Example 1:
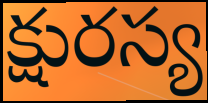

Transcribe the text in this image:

క్షురస్య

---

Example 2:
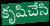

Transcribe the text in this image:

కృషిచేసి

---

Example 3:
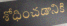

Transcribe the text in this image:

శోధించడానికి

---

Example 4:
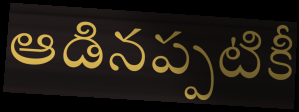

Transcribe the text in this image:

ఆడినప్పటికీ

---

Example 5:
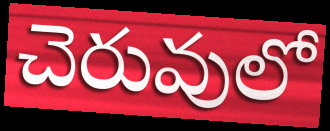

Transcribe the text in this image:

చెరువులో